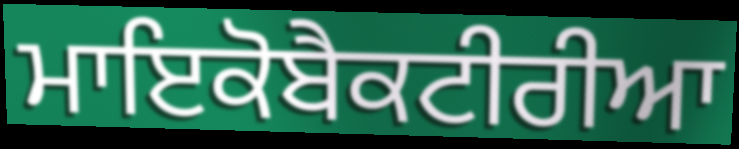
ਮਾਇਕੋਬੈਕਟੀਰੀਆ